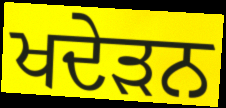
ਖਦੇੜਨ